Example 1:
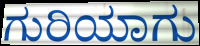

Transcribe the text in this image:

ಗುರಿಯಾಗು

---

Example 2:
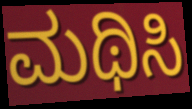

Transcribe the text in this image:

ಮಥಿಸಿ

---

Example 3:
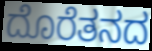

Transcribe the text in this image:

ದೊರೆತನದ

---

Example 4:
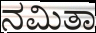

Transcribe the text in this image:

ನಮಿತಾ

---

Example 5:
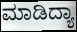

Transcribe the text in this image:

ಮಾಡಿದ್ಯಾ